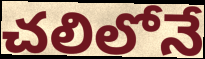
చలిలోనే